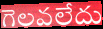
గెలవలేదు